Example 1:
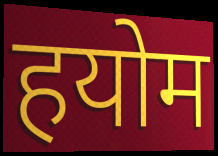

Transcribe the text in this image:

हयोम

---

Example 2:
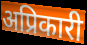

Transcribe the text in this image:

अप्रिकारी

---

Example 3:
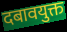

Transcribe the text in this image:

दबावयुक्त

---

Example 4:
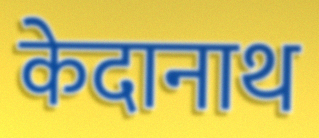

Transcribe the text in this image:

केदानाथ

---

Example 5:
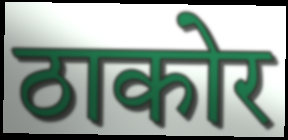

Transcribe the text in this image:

ठाकोर